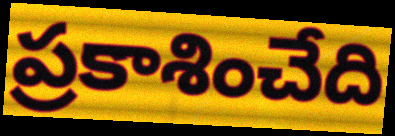
ప్రకాశించేది